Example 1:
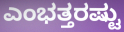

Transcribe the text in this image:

ಎಂಭತ್ತರಷ್ಟು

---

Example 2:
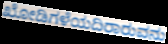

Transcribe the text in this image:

ಖೋಡಿಗಳೆಯದಿರಾರುವನು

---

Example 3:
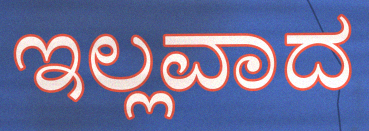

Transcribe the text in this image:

ಇಲ್ಲವಾದ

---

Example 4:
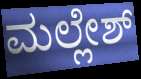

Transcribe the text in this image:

ಮಲ್ಲೇಶ್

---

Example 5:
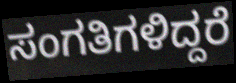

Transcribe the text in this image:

ಸಂಗತಿಗಳಿದ್ದರೆ